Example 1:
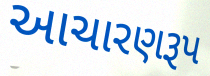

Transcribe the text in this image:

આચારણરૂપ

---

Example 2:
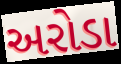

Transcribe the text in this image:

અરોડા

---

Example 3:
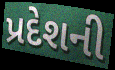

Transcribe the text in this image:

પ્રદેશની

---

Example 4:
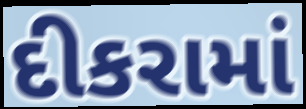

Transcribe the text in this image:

દીકરામાં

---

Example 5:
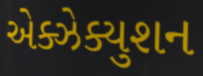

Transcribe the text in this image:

એક્ઝેક્યુશન